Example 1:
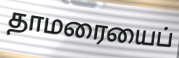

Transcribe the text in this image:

தாமரையைப்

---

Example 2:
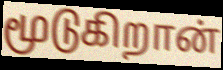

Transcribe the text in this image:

மூடுகிறான்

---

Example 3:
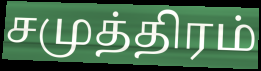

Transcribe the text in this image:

சமுத்திரம்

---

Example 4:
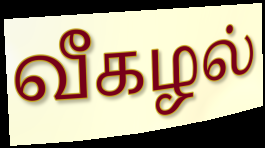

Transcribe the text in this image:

வீகழல்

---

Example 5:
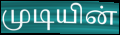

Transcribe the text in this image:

முடியின்